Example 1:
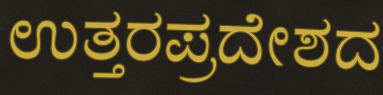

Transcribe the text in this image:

ಉತ್ತರಪ್ರದೇಶದ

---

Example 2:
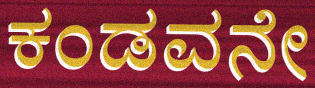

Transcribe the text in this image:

ಕಂಡವನೇ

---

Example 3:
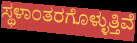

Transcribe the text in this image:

ಸ್ಥಳಾಂತರಗೊಳ್ಳುತ್ತಿವೆ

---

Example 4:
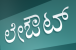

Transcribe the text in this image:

ಲೇಔಟ್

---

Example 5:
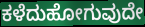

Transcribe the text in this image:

ಕಳೆದುಹೋಗುವುದೇ